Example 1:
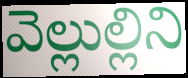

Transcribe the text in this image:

వెల్లుల్లిని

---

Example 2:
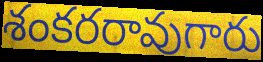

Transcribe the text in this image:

శంకరరావుగారు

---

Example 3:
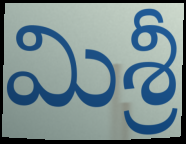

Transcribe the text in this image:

మిశ్రీ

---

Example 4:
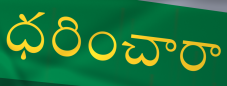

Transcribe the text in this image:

ధరించారా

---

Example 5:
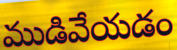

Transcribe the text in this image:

ముడివేయడం